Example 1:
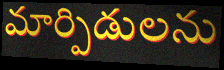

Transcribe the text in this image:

మార్పిడులను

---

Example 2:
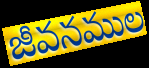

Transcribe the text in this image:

జీవనముల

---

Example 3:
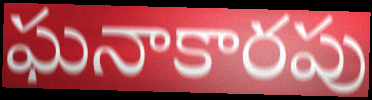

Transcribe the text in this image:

ఘనాకారపు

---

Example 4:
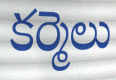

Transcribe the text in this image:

కర్మెలు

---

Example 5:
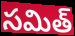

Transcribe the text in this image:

సమిత్